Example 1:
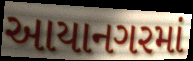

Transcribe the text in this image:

આયાનગરમાં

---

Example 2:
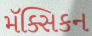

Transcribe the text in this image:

મૅક્સિકન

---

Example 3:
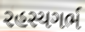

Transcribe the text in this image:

રહસ્યગર્ભ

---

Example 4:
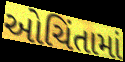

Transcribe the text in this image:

ઓચિંતામાં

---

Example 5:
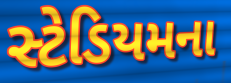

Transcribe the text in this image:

સ્ટેડિયમના